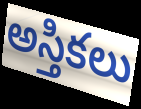
అస్తికలు